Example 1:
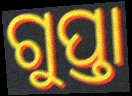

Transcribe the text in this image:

ଗୁପ୍ତା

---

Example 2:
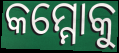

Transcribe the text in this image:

କମ୍ମୋକୁ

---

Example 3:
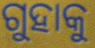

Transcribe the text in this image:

ଗୁହାକୁ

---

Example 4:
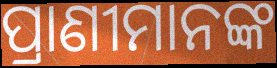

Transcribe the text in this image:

ପ୍ରାଣୀମାନଙ୍କ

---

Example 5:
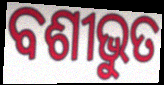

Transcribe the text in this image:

ବଶୀଭୁତ